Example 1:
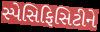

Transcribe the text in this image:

સ્પેસિફિસિટીને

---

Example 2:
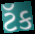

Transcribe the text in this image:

ટૅક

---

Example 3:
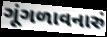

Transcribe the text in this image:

ગૂંગળાવનારું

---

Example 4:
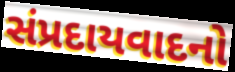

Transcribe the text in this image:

સંપ્રદાયવાદનો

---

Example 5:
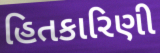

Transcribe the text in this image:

હિતકારિણી